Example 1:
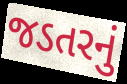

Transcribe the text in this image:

જડતરનું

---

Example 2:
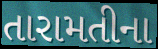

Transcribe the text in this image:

તારામતીના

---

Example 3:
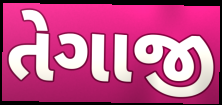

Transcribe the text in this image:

તેગાજી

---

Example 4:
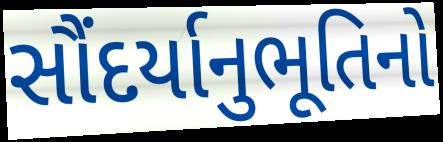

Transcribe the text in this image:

સૌંદર્યાનુભૂતિનો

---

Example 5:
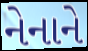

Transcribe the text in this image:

નેનાને